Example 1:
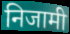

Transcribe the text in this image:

निजामी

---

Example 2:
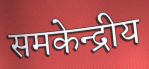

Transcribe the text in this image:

समकेन्द्रीय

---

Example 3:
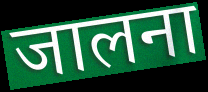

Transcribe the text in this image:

जालना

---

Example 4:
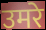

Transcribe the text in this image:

उमरे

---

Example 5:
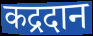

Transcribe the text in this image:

कद्रदान